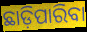
ଛାଡ଼ିପାରିବା